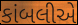
કાંબલીએ